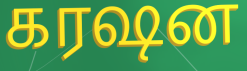
கரஷன